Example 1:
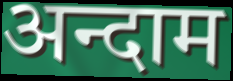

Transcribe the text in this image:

अन्दाम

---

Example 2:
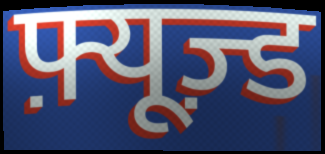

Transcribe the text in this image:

फ़्यूज़्ड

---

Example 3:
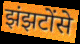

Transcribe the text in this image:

झंझटोंसे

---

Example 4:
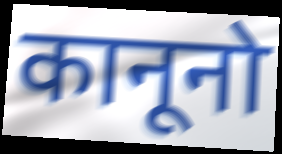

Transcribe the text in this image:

कानूनो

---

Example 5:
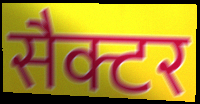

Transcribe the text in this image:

सैक्टर